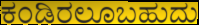
ಕಂಡಿರಲೂಬಹುದು